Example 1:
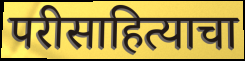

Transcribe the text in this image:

परीसाहित्याचा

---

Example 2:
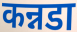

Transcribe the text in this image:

कन्नडा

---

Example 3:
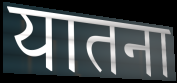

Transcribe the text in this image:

यातना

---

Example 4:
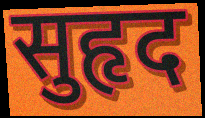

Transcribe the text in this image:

सुहृद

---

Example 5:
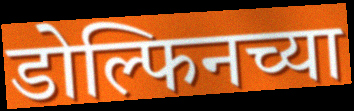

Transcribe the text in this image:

डोल्फिनच्या